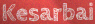
Kesarbai